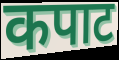
कपाट